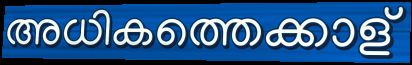
അധികത്തെക്കാള്